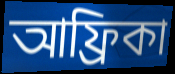
আফ্রিকা